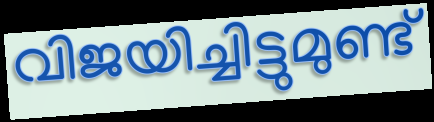
വിജയിച്ചിട്ടുമുണ്ട്